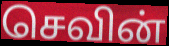
செவின்